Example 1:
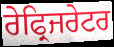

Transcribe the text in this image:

ਰੇਫ੍ਰਿਜਰੇਟਰ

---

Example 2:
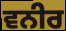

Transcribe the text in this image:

ਵਨੀਰ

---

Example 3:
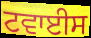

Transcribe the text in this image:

ਟਵਾਈਸ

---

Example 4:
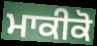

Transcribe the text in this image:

ਮਾਕੀਕੋ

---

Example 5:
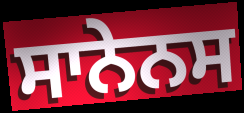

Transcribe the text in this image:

ਸਾਨੇਨਸ